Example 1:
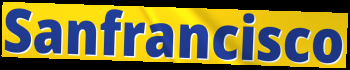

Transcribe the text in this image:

Sanfrancisco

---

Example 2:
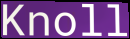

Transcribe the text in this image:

Knoll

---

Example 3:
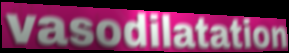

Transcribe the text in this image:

vasodilatation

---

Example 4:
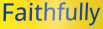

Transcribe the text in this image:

Faithfully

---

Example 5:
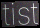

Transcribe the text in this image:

tist